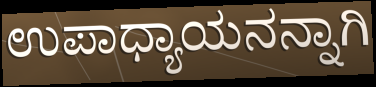
ಉಪಾಧ್ಯಾಯನನ್ನಾಗಿ